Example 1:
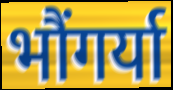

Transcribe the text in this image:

भौंगर्या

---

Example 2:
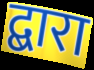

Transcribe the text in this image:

द्बारा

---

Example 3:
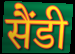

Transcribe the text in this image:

सैंडी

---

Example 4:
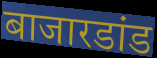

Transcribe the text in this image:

बाजारडांड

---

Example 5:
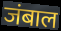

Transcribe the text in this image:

जंबाल